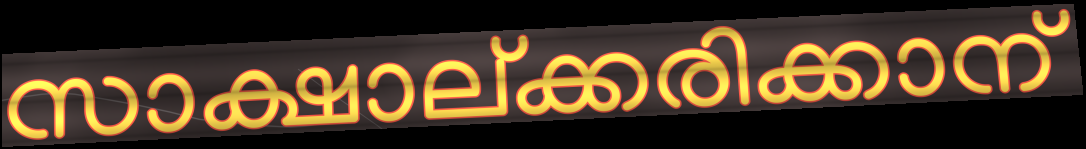
സാക്ഷാല്ക്കരിക്കാന്